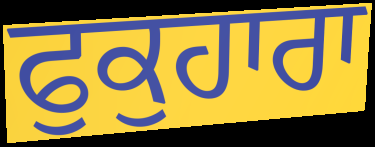
ਫੁਕੁਹਾਰਾ